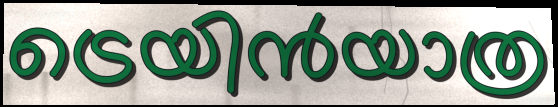
ട്രെയിൻയാത്ര